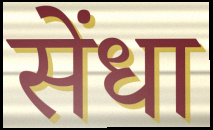
सेंधा